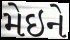
મેઇને